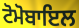
ਟੋਮੋਬਾਇਲ